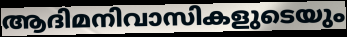
ആദിമനിവാസികളുടെയും